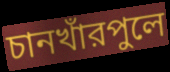
চানখাঁরপুলে